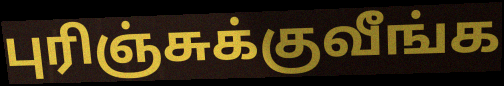
புரிஞ்சுக்குவீங்க